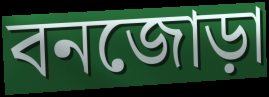
বনজোড়া